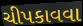
ચીપકાવવા